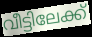
വീട്ടിലേക്ക്